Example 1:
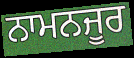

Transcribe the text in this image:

ਨਾਮਨਜੂਰ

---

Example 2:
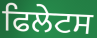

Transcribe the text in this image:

ਫਿਲੇਟਸ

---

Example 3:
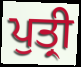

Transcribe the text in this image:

ਪੁਤ੍ਰੀ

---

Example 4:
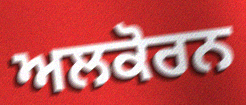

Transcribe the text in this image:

ਅਲਕੋਰਨ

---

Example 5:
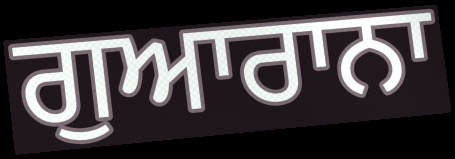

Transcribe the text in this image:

ਗੁਆਰਾਨਾ